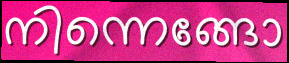
നിന്നെങ്ങോ